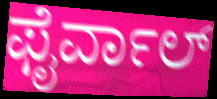
ಫೈರ್ವಾಲ್